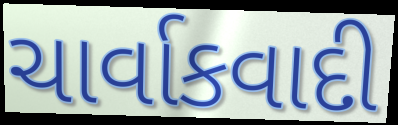
ચાર્વાકવાદી